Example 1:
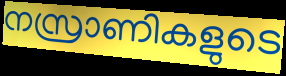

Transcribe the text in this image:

നസ്രാണികളുടെ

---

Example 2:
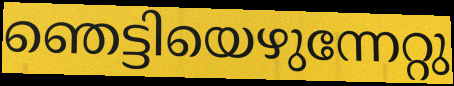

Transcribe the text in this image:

ഞെട്ടിയെഴുന്നേറ്റു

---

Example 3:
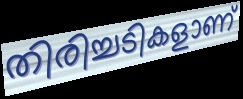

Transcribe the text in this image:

തിരിച്ചടികളാണ്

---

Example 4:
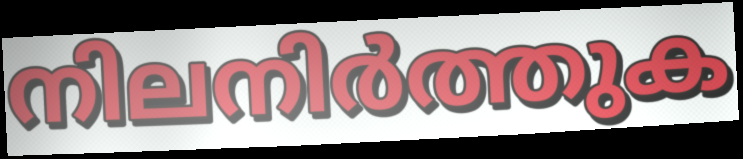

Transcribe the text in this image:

നിലനിർത്തുക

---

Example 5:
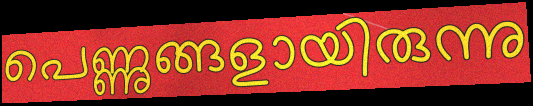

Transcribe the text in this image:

പെണ്ണുങ്ങളായിരുന്നു